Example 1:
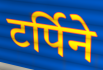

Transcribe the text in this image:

टर्पिने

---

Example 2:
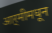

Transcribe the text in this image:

आर्मीमधून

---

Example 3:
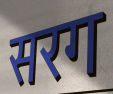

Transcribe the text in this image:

सरग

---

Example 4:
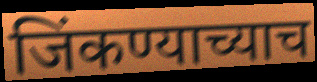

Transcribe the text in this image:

जिंकण्याच्याच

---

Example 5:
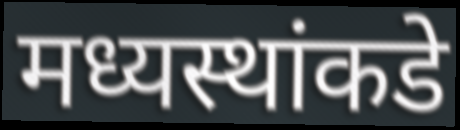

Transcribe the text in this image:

मध्यस्थांकडे